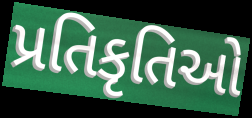
પ્રતિકૃતિઓ